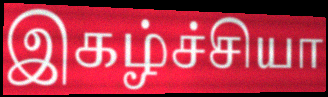
இகழ்ச்சியா